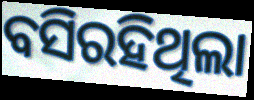
ବସିରହିଥିଲା